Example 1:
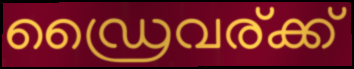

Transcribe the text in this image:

ഡ്രൈവര്ക്ക്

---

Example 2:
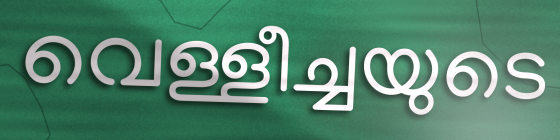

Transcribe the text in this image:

വെള്ളീച്ചയുടെ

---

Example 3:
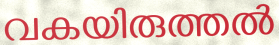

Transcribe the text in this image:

വകയിരുത്തൽ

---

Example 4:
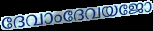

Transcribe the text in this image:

ദേവാംദേവയജോ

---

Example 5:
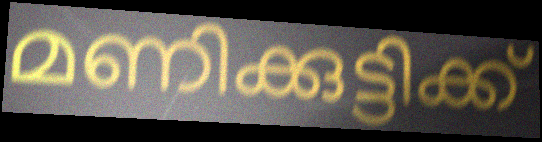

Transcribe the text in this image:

മണിക്കുട്ടിക്ക്